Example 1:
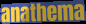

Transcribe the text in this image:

anathema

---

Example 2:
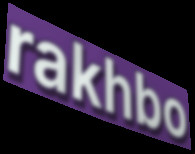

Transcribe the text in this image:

rakhbo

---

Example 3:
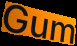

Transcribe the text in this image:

Gum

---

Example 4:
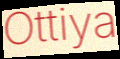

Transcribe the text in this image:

Ottiya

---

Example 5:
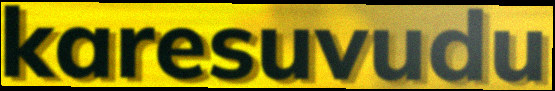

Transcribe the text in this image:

karesuvudu